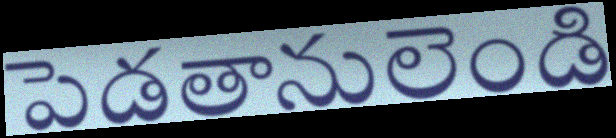
పెడతానులెండి